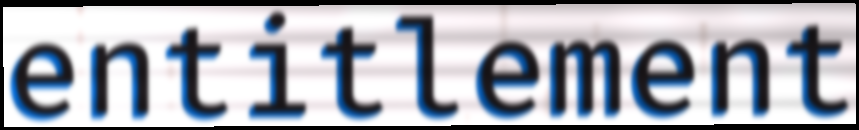
entitlement